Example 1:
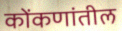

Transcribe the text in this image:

कोंकणांतील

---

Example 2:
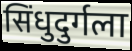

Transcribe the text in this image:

सिंधुदुर्गला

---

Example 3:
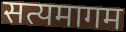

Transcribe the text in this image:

सत्यमागम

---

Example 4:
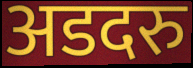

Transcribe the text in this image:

अडदरु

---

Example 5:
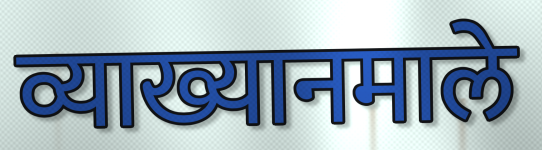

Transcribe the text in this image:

व्याख्यानमाले